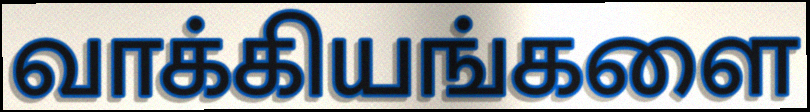
வாக்கியங்களை